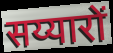
सय्यारों